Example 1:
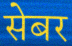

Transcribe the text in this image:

सेबर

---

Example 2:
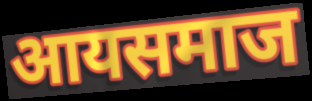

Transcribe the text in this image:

आयसमाज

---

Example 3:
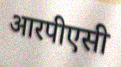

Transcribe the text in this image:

आरपीएसी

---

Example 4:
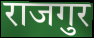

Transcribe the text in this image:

राजगुर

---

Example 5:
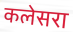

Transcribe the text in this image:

कलेसरा